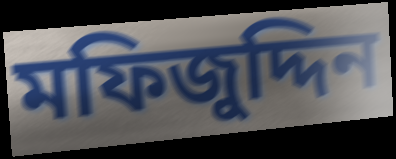
মফিজুদ্দিন